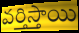
వర్తిస్తాయి